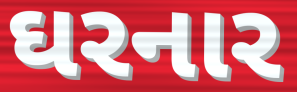
ઘરનાર